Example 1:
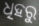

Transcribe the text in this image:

ଧିହରୁ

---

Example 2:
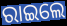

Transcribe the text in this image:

ରାଇଲେ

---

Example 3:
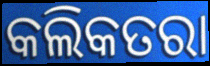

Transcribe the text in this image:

କଲିକତରା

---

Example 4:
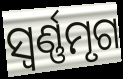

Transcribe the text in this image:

ସ୍ଵର୍ଣ୍ଣମୃଗ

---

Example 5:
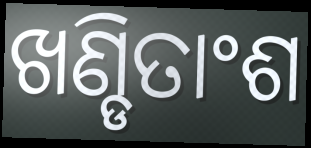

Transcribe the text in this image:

ଖଣ୍ଡିତାଂଶ